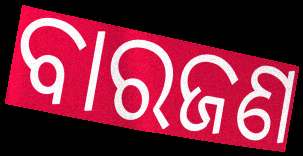
ବାରଜଣ